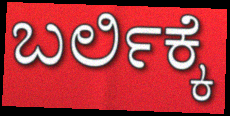
ಬರ್ಲಿಕ್ಕೆ